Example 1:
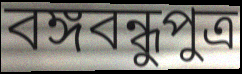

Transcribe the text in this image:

বঙ্গবন্ধুপুত্র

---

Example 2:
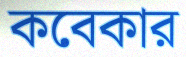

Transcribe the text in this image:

কবেকার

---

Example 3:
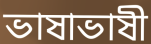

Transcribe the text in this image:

ভাষাভাষী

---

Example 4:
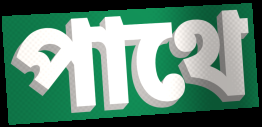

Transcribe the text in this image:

পাথে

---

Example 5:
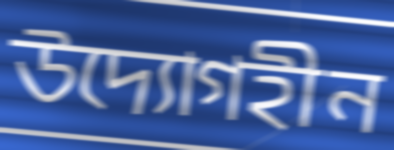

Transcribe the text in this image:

উদ্যোগহীন